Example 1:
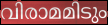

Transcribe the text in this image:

വിരാമമിടും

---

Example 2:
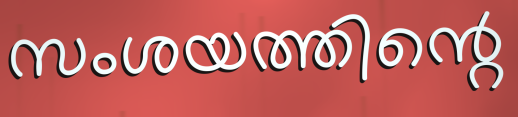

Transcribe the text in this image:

സംശയത്തിന്റെ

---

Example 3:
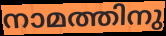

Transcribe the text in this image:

നാമത്തിനു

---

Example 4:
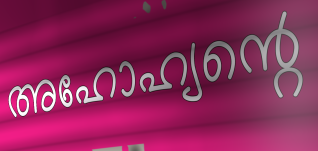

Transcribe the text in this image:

അഹോഹ്യന്റെ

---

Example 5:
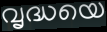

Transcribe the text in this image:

വൃദ്ധയെ